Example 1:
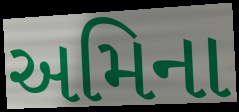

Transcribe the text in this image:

અમિના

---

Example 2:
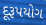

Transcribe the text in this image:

દૂરૂપયોગ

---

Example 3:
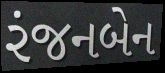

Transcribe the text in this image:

રંજનબેન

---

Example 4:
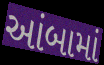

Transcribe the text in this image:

આંબામાં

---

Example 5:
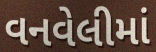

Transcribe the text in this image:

વનવેલીમાં